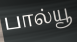
பால்யூ